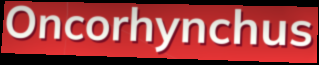
Oncorhynchus